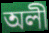
অলী